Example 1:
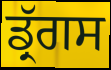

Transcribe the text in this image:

ਡ੍ਰੱਗਸ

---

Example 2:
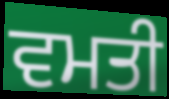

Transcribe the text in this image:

ਵਮਤੀ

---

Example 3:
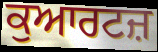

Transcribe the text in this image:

ਕੁਆਰਟਜ਼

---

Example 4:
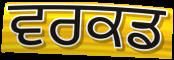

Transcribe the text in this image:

ਵਰਕਡ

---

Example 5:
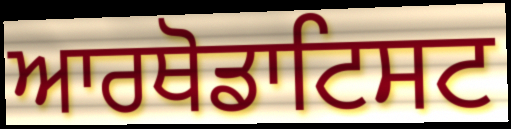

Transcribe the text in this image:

ਆਰਥੋਡਾਟਿਸਟ